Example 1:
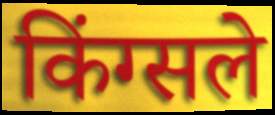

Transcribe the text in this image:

किंग्सले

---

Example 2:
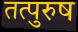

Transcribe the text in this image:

तत्पुरुष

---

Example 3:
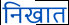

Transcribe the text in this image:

निखात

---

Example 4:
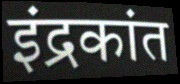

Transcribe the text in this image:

इंद्रकांत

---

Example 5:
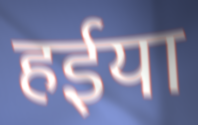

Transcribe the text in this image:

हईया